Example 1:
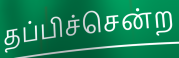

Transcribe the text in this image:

தப்பிச்சென்ற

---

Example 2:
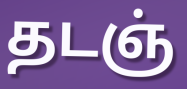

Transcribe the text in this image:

தடஞ்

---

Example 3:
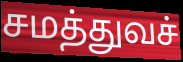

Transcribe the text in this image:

சமத்துவச்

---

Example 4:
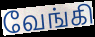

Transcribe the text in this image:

வேங்கி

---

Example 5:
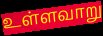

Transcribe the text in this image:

உள்ளவாறு